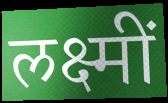
लक्ष्मीं